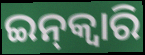
ଇନ୍‌କ୍ଵାରି